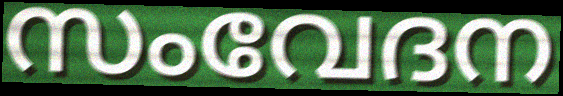
സംവേദന